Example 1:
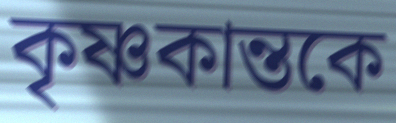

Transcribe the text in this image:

কৃষ্ণকান্তকে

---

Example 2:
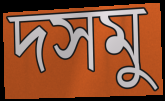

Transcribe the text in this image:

দসমু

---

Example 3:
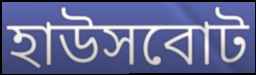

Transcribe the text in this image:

হাউসবোট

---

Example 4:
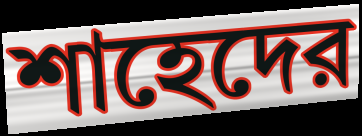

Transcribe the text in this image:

শাহেদের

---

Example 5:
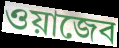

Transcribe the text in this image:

ওয়াজেব